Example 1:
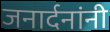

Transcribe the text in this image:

जनार्दनांनी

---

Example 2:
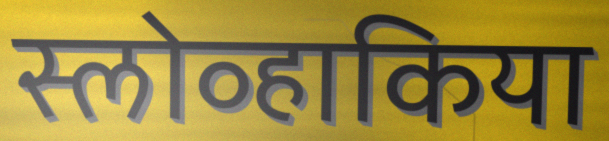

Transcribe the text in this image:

स्लोव्हाकिया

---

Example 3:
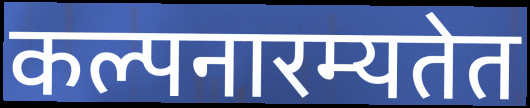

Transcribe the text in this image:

कल्पनारम्यतेत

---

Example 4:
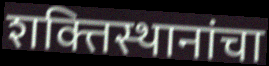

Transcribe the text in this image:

शक्तिस्थानांचा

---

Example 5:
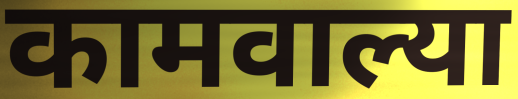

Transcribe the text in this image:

कामवाल्या